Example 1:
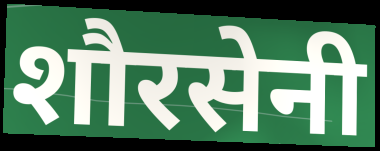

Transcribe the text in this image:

शौरसेनी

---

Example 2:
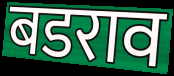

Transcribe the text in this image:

बडराव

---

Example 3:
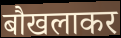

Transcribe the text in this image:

बौखलाकर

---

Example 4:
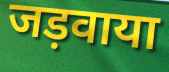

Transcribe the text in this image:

जड़वाया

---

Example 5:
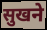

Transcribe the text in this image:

सुखने